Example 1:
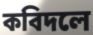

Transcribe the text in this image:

কবিদলে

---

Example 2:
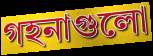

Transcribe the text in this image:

গহনাগুলো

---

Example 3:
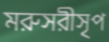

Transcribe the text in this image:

মরুসরীসৃপ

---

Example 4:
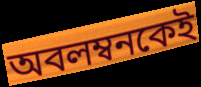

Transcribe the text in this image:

অবলম্বনকেই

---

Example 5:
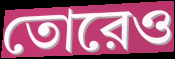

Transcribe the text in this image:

তোরেও